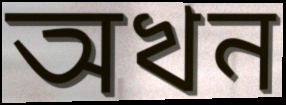
অখন